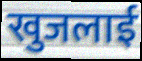
खुजलाई